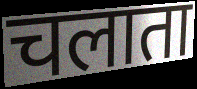
चलाता